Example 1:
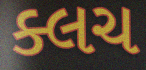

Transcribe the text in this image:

ક્લચ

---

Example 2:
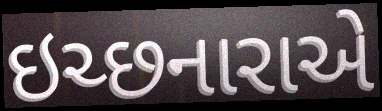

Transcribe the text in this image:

ઇચ્છનારાએ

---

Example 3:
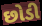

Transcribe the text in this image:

છોડી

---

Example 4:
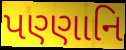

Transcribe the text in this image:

પણ્ણાનિ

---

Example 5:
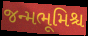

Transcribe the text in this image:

જન્મભૂમિશ્ચ